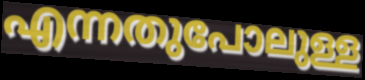
എന്നതുപോലുള്ള